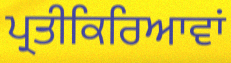
ਪ੍ਰਤੀਕਿਰਿਆਵਾਂ